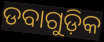
ଡବାଗୁଡ଼ିକ